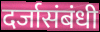
दर्जासंबंधी